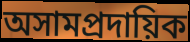
অসামপ্রদায়িক